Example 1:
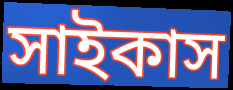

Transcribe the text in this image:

সাইকাস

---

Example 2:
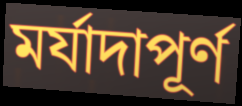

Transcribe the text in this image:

মর্যাদাপূর্ণ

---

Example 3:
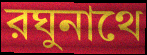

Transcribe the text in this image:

রঘুনাথে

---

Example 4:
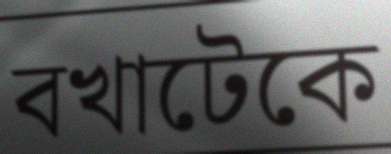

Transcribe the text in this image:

বখাটেকে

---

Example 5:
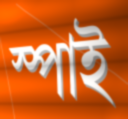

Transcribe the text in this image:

স্পাই